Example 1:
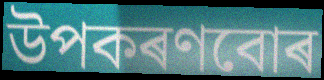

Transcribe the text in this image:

উপকৰণবোৰ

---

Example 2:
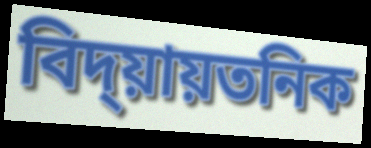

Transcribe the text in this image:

বিদ্য়ায়তনিক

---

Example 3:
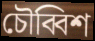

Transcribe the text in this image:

চৌব্বিশ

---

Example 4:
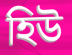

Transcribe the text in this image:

হিউ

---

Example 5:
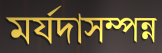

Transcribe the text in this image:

মৰ্যদাসম্পন্ন